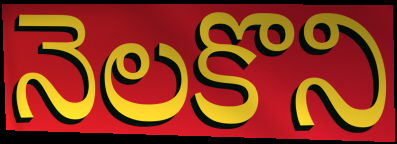
నెలకొని